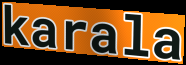
karala